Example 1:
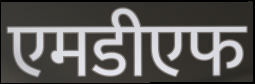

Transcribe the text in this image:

एमडीएफ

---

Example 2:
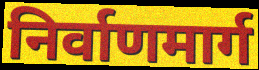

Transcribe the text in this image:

निर्वाणमार्ग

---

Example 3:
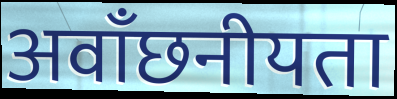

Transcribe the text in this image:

अवाँछनीयता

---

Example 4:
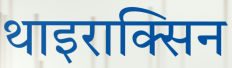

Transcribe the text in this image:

थाइराक्सिन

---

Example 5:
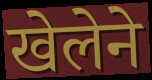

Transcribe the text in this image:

खेलेने